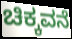
ಚಿಕ್ಕವನೆ